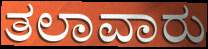
ತಲಾವಾರು